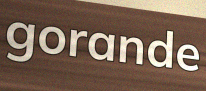
gorande